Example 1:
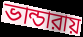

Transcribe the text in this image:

ভান্ডারায়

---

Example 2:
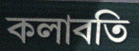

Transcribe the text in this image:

কলাবতি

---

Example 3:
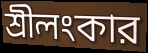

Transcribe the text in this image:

শ্রীলংকার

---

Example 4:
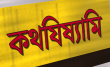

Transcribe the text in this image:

কথযিষ্যামি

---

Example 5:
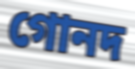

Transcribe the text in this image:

গোনদ